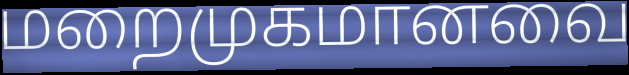
மறைமுகமானவை